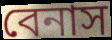
বেনাস